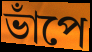
ভাঁপে